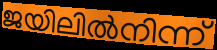
ജയിലിൽനിന്ന്